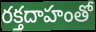
రక్తదాహంతో